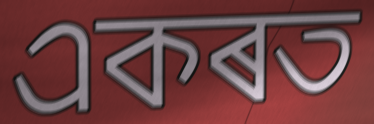
একৰত